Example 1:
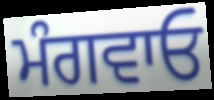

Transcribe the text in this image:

ਮੰਗਵਾਓ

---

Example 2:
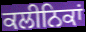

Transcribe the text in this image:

ਕਲੀਨਿਕਾਂ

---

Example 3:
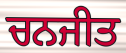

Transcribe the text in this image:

ਚਨਜੀਤ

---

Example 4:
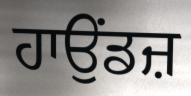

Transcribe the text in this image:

ਹਾਉਂਡਜ਼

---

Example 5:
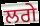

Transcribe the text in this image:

ਲਗੇ